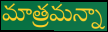
మాత్రమన్నా